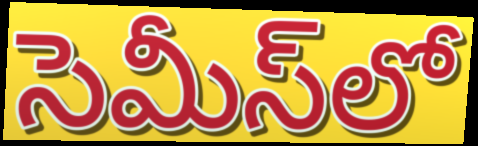
సెమీస్‌లో